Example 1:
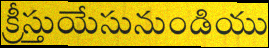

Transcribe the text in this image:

క్రీస్తుయేసునుండియు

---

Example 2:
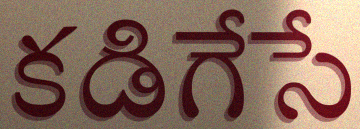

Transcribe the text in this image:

కడిగేసే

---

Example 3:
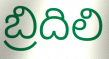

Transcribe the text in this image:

బ్రిదిలి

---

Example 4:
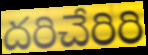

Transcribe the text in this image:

దరిచేరిరి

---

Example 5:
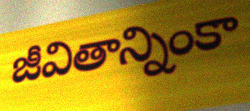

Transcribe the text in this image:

జీవితాన్నింకా